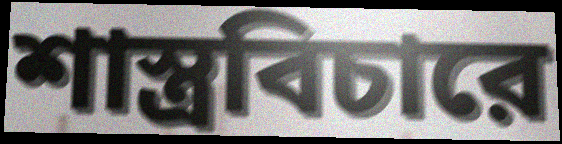
শাস্ত্রবিচারে